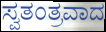
ಸ್ವತಂತ್ರವಾದ